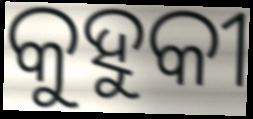
କୁହୁକୀ